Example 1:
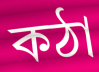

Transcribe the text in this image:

কঠা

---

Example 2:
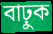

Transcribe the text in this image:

বাঢ়ুক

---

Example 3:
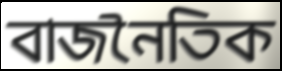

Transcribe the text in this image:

বাজনৈতিক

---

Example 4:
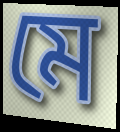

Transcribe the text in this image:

মে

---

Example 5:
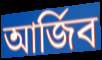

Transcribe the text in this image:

আৰ্জিব